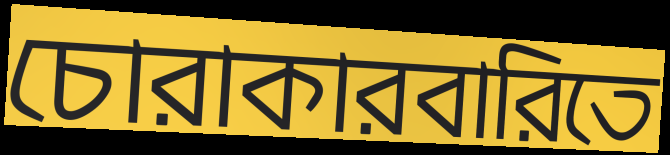
চোরাকারবারিতে